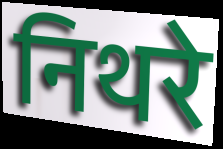
निथरे